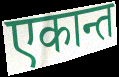
एकान्त